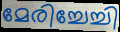
മേരിച്ചേച്ചി